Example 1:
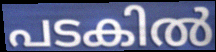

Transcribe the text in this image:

പടകിൽ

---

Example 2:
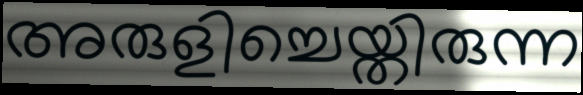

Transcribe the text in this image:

അരുളിച്ചെയ്തിരുന്ന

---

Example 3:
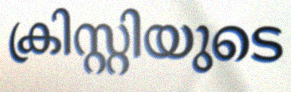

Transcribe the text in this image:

ക്രിസ്റ്റിയുടെ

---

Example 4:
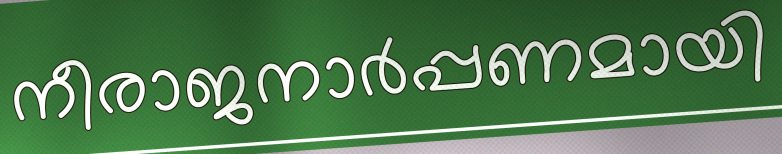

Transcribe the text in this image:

നീരാജനാർപ്പണമായി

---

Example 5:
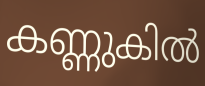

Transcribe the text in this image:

കണ്ണുകിൽ